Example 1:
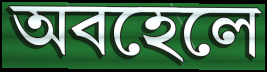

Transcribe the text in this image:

অবহেলে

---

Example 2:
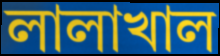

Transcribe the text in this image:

লালাখাল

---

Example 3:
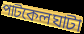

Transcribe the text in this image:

পাটকেলঘাটা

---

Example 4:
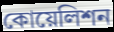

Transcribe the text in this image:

কোয়েলিশন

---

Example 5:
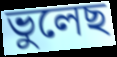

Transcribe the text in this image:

ভুলেছ